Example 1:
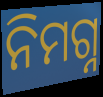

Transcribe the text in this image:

ନିମଗ୍ନ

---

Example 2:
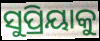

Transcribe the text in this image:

ସୁପ୍ରିୟାକୁ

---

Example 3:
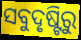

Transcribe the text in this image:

ସବୁଦୃଷ୍ଟିରୁ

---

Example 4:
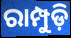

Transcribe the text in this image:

ରାମ୍ପୁଡ଼ି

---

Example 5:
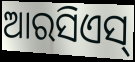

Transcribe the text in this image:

ଆରସିଏସ୍